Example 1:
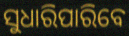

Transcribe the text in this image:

ସୁଧାରିପାରିବେ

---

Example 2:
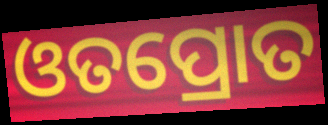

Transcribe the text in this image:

ଓତପ୍ରୋତ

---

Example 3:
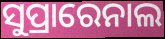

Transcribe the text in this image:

ସୁପ୍ରାରେନାଲ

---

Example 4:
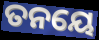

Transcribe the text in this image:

ତନୟେ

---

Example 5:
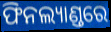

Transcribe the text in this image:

ଫିନଲ୍ୟାଣ୍ଡରେ